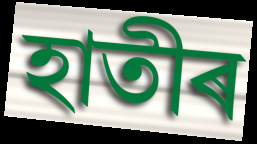
হাতীৰ